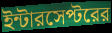
ইন্টারসেপ্টরের